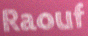
Raouf